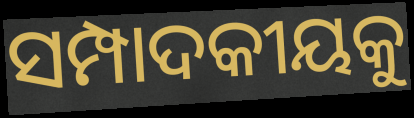
ସମ୍ପାଦକୀୟକୁ